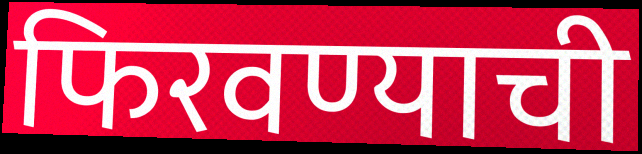
फिरवण्याची